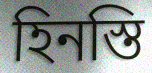
হিনস্তি